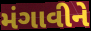
મંગાવીને